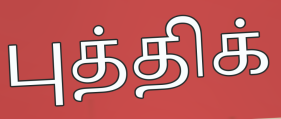
புத்திக்